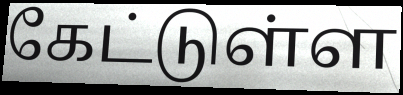
கேட்டுள்ள